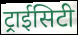
ट्राईसिटी